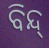
ବିନ୍ଦ୍